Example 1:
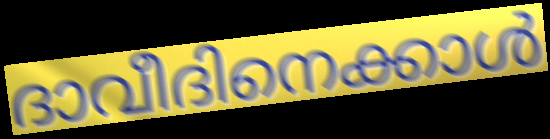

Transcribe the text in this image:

ദാവീദിനെക്കാൾ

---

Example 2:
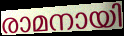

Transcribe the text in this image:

രാമനായി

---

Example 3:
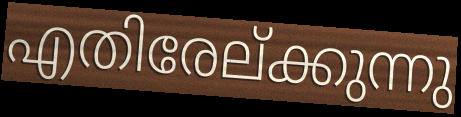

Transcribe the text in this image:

എതിരേല്ക്കുന്നു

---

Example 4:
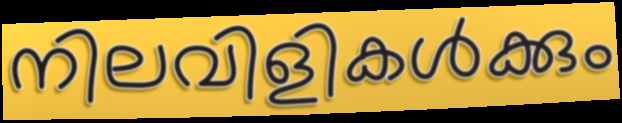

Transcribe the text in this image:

നിലവിളികൾക്കും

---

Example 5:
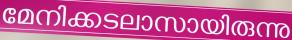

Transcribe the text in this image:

മേനിക്കടലാസായിരുന്നു